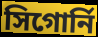
সিগোর্নি